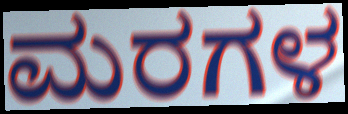
ಮರಗಳ